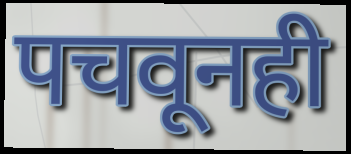
पचवूनही